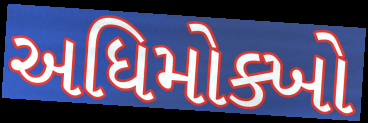
અધિમોક્ખો